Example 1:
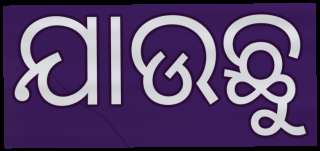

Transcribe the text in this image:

ଯାଉଛୁ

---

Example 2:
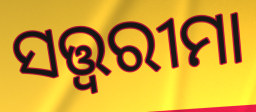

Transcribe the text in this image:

ସତ୍ତ୍ୱରୀମା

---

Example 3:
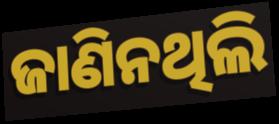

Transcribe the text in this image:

ଜାଣିନଥିଲି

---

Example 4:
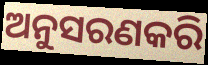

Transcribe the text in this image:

ଅନୁସରଣକରି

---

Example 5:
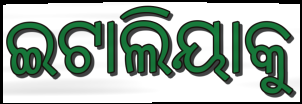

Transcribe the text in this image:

ଇଟାଲିୟାକୁ